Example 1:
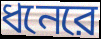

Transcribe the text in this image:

ধনেরে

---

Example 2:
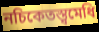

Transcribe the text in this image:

নচিকেতস্ত্বমেধি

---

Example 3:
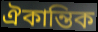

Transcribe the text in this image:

ঐকান্তিক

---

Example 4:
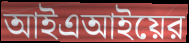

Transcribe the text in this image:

আইএআইয়ের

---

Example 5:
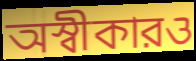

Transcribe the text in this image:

অস্বীকারও